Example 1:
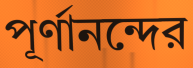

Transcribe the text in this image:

পূর্ণানন্দের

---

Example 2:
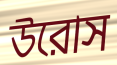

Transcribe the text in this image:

উরোস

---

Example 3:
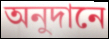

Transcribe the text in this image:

অনুদানে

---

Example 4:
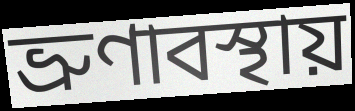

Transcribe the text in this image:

ভ্রুণাবস্থায়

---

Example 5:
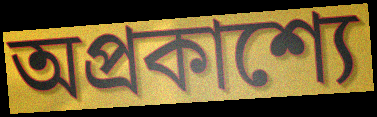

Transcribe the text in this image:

অপ্রকাশ্যে